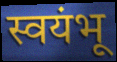
स्वयंभू